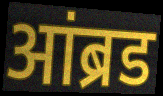
आंब्रड